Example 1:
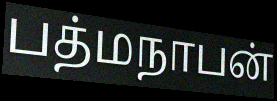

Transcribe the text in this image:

பத்மநாபன்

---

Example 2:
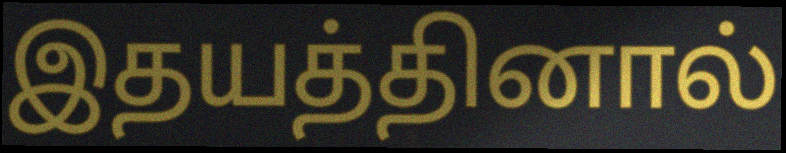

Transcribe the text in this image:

இதயத்தினால்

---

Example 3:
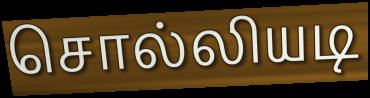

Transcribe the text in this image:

சொல்லியடி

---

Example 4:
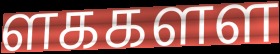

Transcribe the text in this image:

ளககளள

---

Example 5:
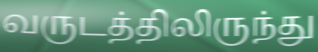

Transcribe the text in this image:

வருடத்திலிருந்து